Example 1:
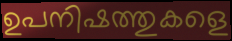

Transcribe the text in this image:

ഉപനിഷത്തുകളെ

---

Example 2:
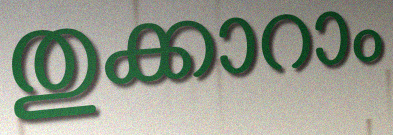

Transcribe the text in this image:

തുക്കാറാം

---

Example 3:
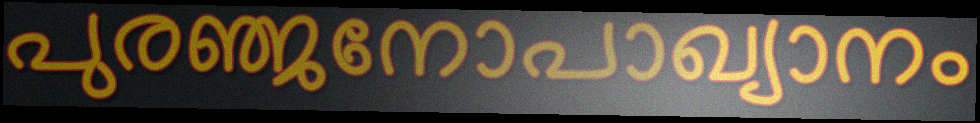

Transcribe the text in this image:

പുരഞ്ജനോപാഖ്യാനം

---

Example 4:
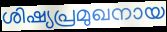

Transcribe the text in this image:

ശിഷ്യപ്രമുഖനായ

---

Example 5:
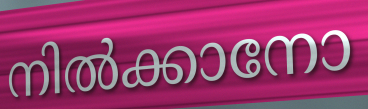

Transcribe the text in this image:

നിൽക്കാനോ